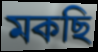
মকছি